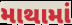
માથામાં